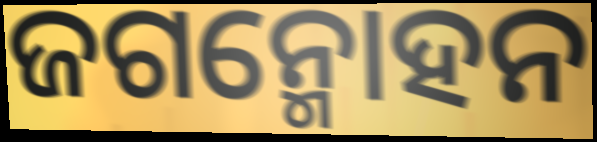
ଜଗନ୍ମୋହନ